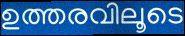
ഉത്തരവിലൂടെ